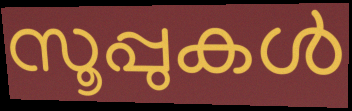
സൂപ്പുകൾ